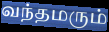
வந்தமரும்